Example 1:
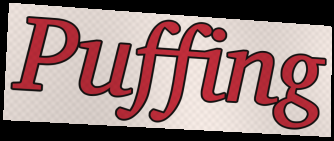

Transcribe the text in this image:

Puffing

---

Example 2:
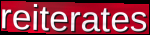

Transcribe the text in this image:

reiterates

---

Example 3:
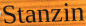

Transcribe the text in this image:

Stanzin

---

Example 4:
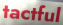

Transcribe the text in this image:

tactful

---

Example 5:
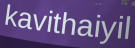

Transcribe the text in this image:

kavithaiyil